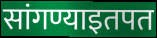
सांगण्याइतपत